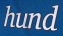
hund